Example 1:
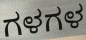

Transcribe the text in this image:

ಗಳಗಳ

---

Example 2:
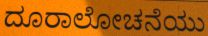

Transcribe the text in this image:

ದೂರಾಲೋಚನೆಯು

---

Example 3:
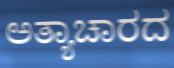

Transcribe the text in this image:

ಅತ್ಯಾಚಾರದ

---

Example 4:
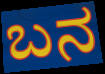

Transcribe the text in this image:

ಬನ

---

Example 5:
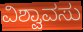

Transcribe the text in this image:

ವಿಶ್ವಾವಸು